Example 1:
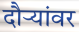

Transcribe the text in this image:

दौर्‍यांवर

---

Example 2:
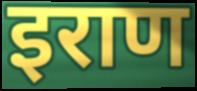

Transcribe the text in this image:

इराण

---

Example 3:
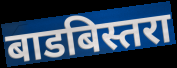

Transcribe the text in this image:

बाडबिस्तरा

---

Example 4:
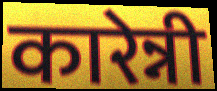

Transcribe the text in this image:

कारेन्नी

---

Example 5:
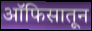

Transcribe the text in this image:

ऑफिसातून